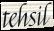
tehsil